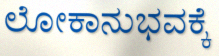
ಲೋಕಾನುಭವಕ್ಕೆ